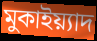
মুকাইয়্যাদ